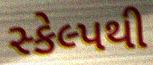
સ્કેલ્પથી